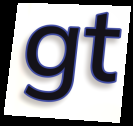
gt